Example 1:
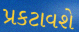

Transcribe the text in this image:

પ્રકટાવશે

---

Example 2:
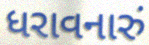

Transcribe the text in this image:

ધરાવનારું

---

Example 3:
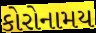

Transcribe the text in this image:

કોરોનામય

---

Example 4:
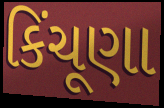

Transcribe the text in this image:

કિંચૂણા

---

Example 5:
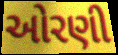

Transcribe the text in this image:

ઓરણી